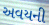
અવયની